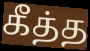
கீத்த